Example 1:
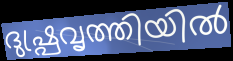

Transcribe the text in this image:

ദുഷ്പ്രവൃത്തിയിൽ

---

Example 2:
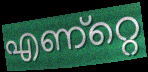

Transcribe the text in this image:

എണ്റ്റെ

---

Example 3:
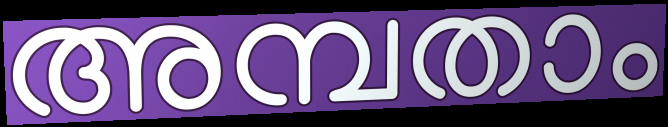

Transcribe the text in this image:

അമ്പതാം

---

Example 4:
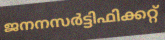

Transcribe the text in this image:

ജനനസർട്ടിഫിക്കറ്റ്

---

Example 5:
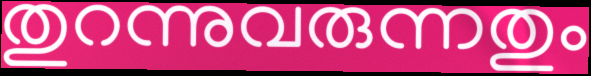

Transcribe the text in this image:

തുറന്നുവരുന്നതും